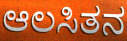
ಆಲಸಿತನ